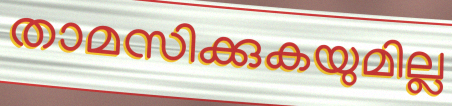
താമസിക്കുകയുമില്ല